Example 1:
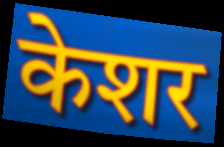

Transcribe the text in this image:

केशर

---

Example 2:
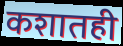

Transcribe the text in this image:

कशातही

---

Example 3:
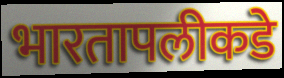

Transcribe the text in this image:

भारतापलीकडे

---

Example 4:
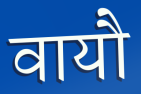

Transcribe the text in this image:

वायौ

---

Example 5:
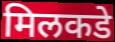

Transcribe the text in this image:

मिलकडे